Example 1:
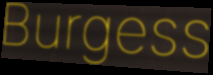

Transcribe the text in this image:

Burgess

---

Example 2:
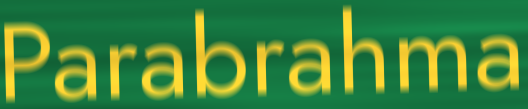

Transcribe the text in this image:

Parabrahma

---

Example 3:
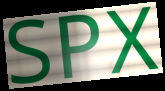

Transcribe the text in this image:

SPX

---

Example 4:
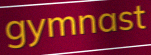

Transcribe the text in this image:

gymnast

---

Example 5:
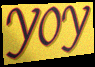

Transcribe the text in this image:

YOY